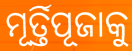
ମୂର୍ତ୍ତିପୂଜାକୁ